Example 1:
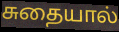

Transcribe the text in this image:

சுதையால்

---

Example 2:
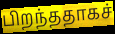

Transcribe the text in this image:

பிறந்ததாகச்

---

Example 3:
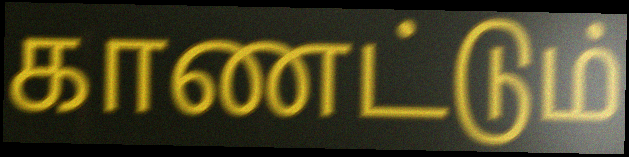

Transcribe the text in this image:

காணட்டும்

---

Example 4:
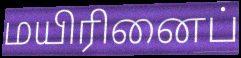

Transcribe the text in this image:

மயிரினைப்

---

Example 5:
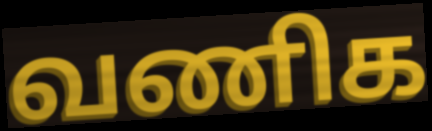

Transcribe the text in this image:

வணிக